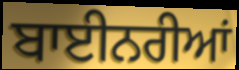
ਬਾਈਨਰੀਆਂ